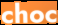
choc